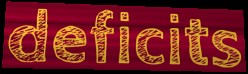
deficits